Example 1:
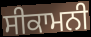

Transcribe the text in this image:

ਸੀਕਾਮਨੀ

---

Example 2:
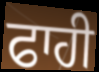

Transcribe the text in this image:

ਫਾਹੀ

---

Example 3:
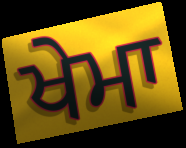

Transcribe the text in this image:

ਖੇਮਾ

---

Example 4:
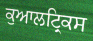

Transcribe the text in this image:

ਕੁਆਲਟ੍ਰਿਕਸ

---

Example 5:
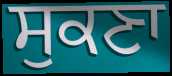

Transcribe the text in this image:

ਸੁਕਣਾ